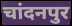
चांदनपुर